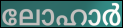
ലോഹാർ